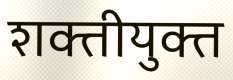
शक्तीयुक्त